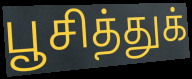
பூசித்துக்